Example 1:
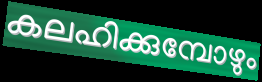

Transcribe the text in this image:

കലഹിക്കുമ്പോഴും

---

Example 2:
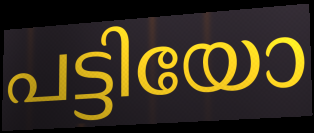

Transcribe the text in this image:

പട്ടിയോ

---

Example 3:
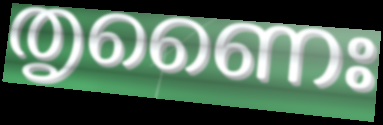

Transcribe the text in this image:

തൃണൈഃ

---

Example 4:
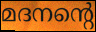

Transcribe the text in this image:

മദനന്റെ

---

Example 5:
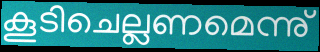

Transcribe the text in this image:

കൂടിചെല്ലണമെന്നു്